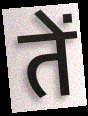
तें